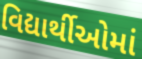
વિદ્યાર્થીઓમાં